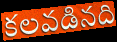
కలవడినది